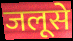
जलूसे